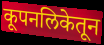
कूपनलिकेतून